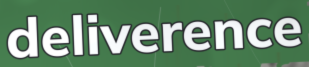
deliverence